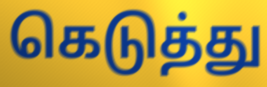
கெடுத்து